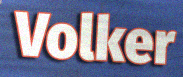
Volker